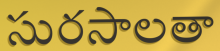
సురసాలతా